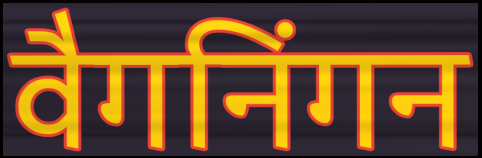
वैगनिंगन